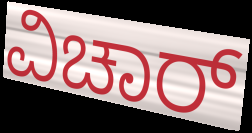
ವಿಚಾರ್